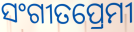
ସଂଗୀତପ୍ରେମୀ